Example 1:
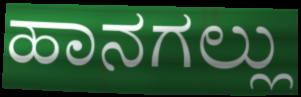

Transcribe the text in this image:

ಹಾನಗಲ್ಲು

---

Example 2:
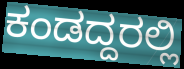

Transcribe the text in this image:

ಕಂಡದ್ದರಲ್ಲಿ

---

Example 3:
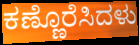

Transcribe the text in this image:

ಕಣ್ಣೊರೆಸಿದಳು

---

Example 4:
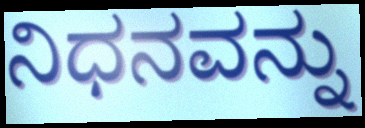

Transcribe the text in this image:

ನಿಧನವನ್ನು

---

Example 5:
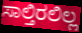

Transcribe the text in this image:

ಸಾಲ್ತಿರಲಿಲ್ಲ